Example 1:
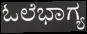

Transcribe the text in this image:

ಓಲೆಭಾಗ್ಯ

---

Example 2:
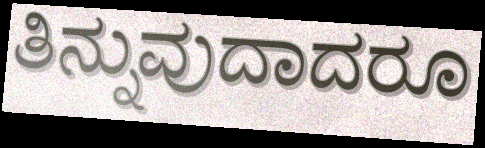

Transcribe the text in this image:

ತಿನ್ನುವುದಾದರೂ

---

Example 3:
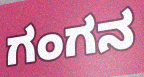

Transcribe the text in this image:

ಗಂಗನ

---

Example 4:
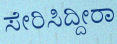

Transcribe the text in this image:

ಸೇರಿಸಿದ್ದೀರಾ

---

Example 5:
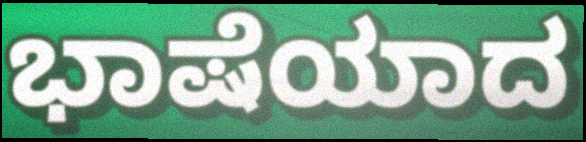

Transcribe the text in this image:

ಭಾಷೆಯಾದ